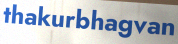
thakurbhagvan